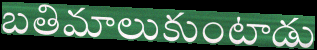
బతిమాలుకుంటాడు